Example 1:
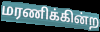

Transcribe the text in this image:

மரணிக்கின்ற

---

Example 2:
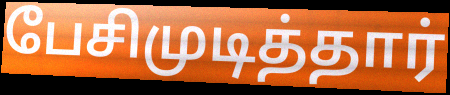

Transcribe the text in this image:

பேசிமுடித்தார்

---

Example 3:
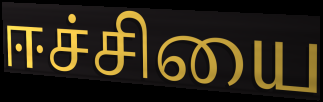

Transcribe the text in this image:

ஈச்சியை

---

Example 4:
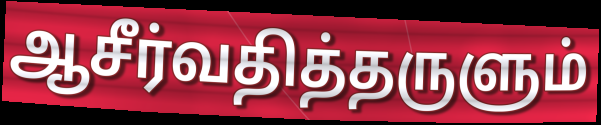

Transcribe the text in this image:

ஆசீர்வதித்தருளும்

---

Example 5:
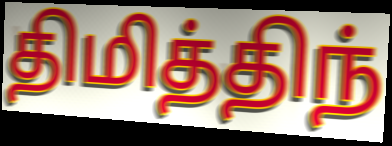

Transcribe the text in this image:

திமித்திந்